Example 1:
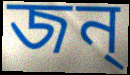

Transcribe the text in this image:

জন্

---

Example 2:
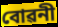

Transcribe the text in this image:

বোৱনী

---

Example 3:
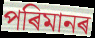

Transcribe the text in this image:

পৰিমানৰ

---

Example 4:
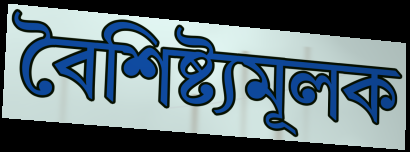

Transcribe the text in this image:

বৈশিষ্ট্যমূলক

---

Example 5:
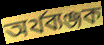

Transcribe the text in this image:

অৰ্থব্যঞ্জক